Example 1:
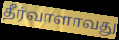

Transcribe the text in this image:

தீர்வாளாவது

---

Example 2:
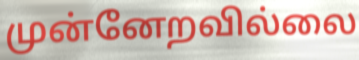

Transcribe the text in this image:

முன்னேறவில்லை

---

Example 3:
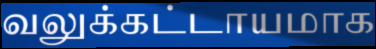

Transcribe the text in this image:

வலுக்கட்டாயமாக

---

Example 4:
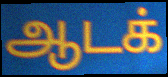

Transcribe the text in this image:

ஆடக்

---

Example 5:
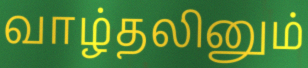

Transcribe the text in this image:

வாழ்தலினும்